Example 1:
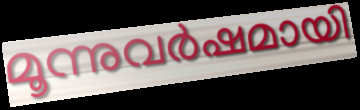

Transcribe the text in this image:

മൂന്നുവർഷമായി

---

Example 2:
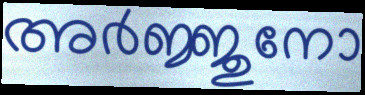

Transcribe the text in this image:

അർജ്ജുനോ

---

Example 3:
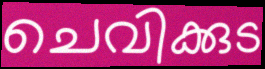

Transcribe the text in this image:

ചെവിക്കുട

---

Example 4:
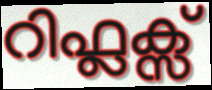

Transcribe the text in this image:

റിഫ്ലക്സ്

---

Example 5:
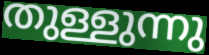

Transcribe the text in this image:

തുള്ളുന്നു